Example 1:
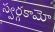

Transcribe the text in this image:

స్వర్గకామో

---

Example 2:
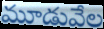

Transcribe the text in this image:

మూడువేల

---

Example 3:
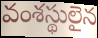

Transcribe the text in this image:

వంశస్థులైన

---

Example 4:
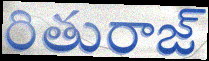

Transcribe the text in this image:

రితురాజ్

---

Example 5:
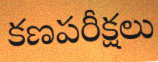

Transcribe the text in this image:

కణపరీక్షలు